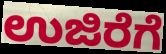
ಉಜಿರೆಗೆ